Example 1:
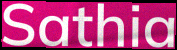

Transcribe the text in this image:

Sathia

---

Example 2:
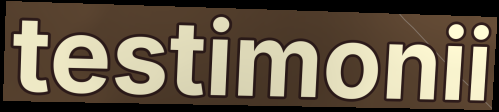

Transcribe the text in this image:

testimonii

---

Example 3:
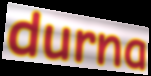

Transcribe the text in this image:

durna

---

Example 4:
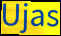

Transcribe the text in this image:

Ujas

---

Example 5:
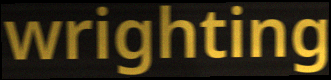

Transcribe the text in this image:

wrighting